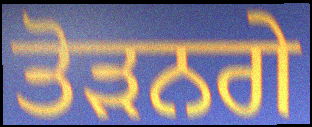
ਤੋੜਨਗੇ